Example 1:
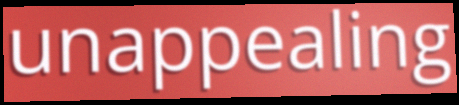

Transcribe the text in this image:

unappealing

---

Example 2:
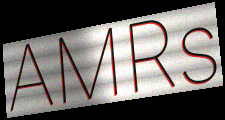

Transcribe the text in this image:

AMRs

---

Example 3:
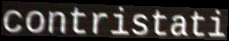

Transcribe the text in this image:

contristati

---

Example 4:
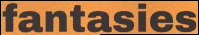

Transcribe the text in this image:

fantasies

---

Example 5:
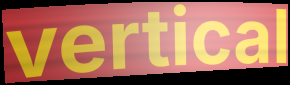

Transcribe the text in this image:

vertical